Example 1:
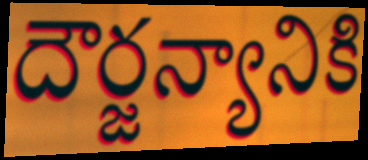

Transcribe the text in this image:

దౌర్జన్యానికి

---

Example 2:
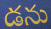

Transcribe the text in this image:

డను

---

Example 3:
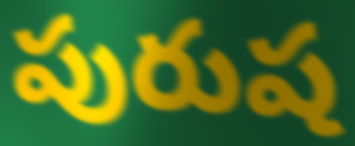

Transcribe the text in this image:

పురుష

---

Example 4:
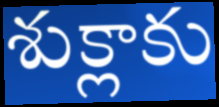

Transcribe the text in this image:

శుక్లాకు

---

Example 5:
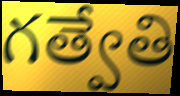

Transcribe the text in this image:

గత్వేతి